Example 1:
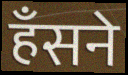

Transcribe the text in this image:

हँसने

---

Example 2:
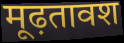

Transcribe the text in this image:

मूढ़तावश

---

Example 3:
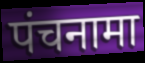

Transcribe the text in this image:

पंचनामा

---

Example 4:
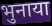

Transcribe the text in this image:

भुनाया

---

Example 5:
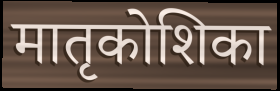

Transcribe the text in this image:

मातृकोशिका